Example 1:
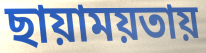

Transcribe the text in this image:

ছায়াময়তায়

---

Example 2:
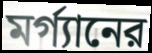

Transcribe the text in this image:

মর্গ্যানের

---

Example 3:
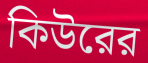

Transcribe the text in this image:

কিউরের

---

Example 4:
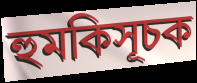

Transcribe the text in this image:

হুমকিসূচক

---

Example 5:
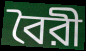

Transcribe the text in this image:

বৈরী